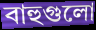
বাহুগুলো